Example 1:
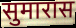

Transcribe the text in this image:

सुमारास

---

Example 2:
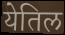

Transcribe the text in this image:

येतिल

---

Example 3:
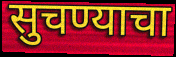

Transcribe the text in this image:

सुचण्याचा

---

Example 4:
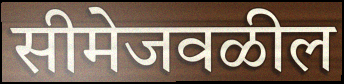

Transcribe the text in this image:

सीमेजवळील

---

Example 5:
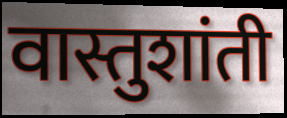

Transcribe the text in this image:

वास्तुशांती